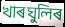
খাৰঘুলিৰ